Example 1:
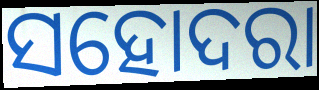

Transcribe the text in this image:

ସହୋଦରା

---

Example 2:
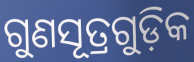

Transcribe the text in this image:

ଗୁଣସୂତ୍ରଗୁଡ଼ିକ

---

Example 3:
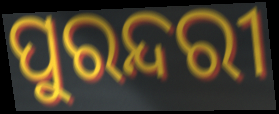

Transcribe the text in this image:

ପୁରନ୍ଦରୀ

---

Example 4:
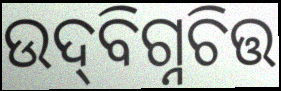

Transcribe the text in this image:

ଉଦ୍‌ବିଗ୍ନଚିତ୍ତ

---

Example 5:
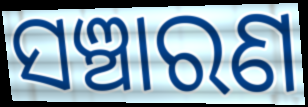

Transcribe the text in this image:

ସଞ୍ଚାରଣ